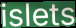
islets